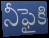
నీఫైకి